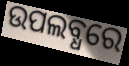
ଉପଲବ୍ଧରେ